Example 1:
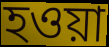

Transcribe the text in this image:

হওয়া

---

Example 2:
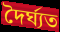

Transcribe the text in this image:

দৈৰ্ঘ্যত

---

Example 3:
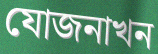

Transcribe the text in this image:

যোজনাখন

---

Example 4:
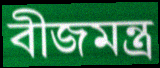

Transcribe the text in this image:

বীজমন্ত্ৰ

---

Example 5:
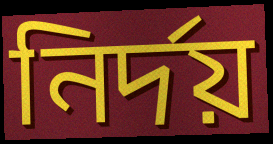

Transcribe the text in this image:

নিৰ্দয়